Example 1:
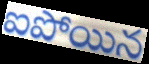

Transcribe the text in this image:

ఐపోయిన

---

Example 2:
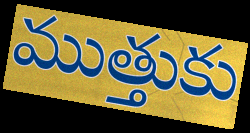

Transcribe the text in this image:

ముత్తుకు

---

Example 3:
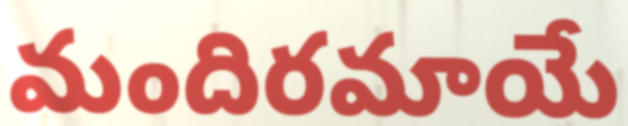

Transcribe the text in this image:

మందిరమాయే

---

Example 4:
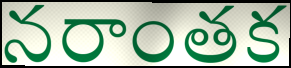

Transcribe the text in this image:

నరాంతక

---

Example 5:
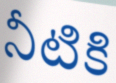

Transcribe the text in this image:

నీటికి